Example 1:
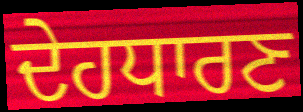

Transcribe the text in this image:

ਦੇਹਧਾਰਣ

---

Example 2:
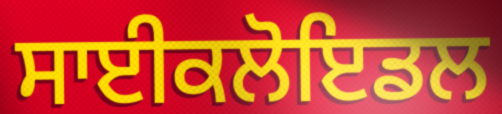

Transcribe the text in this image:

ਸਾਈਕਲੋਇਡਲ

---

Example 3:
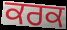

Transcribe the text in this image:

ਕਰਕ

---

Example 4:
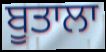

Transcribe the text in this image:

ਬੂਤਾਲਾ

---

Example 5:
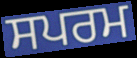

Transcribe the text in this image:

ਸਪਰਮ